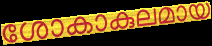
ശോകാകുലമായ